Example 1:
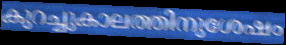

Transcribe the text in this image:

കുറച്ചുകാലത്തിനുശേഷം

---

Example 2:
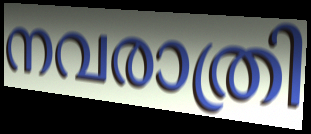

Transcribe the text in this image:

നവരാത്രി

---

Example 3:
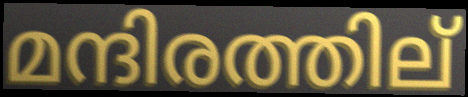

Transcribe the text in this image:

മന്ദിരത്തില്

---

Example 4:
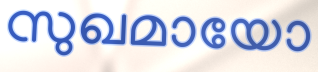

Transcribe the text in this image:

സുഖമായോ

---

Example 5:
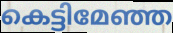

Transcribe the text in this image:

കെട്ടിമേഞ്ഞ